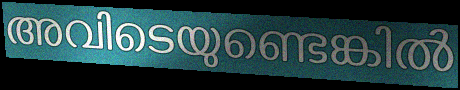
അവിടെയുണ്ടെങ്കിൽ